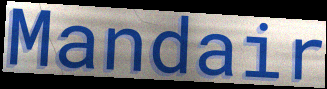
Mandair